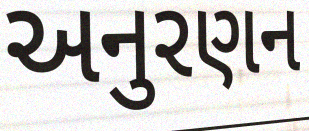
અનુરણન